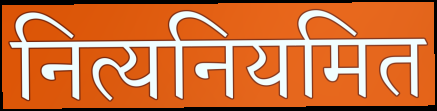
नित्यनियमित